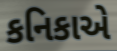
કનિકાએ